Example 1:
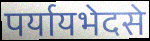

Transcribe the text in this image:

पर्यायभेदसे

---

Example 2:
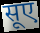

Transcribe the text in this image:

सूए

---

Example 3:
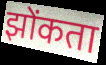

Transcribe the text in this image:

झोंकता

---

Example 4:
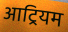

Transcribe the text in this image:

आट्रियम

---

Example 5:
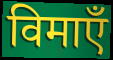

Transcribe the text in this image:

विमाएँ